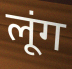
लूंग